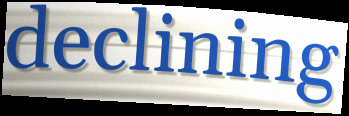
declining